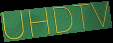
UHDTV